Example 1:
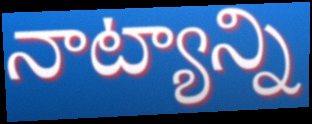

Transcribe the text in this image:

నాట్యాన్ని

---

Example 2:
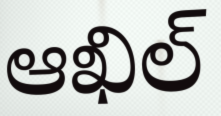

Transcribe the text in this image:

ఆఖిల్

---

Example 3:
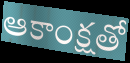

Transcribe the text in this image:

ఆకాంక్షతో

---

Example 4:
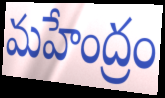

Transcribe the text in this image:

మహేంద్రం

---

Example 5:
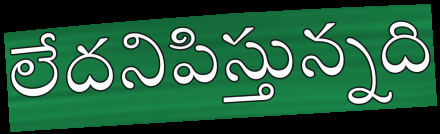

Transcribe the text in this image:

లేదనిపిస్తున్నది